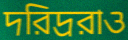
দরিদ্ররাও